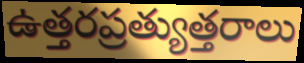
ఉత్తరప్రత్యుత్తరాలు